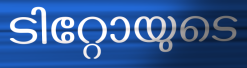
ടിറ്റോയുടെ